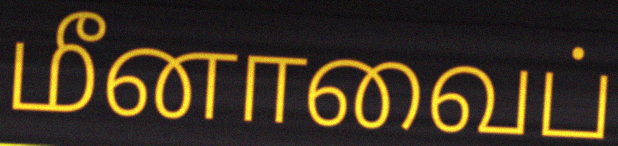
மீனாவைப்